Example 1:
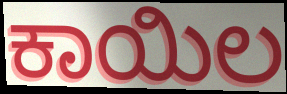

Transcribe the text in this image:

ಕಾಯಿಲ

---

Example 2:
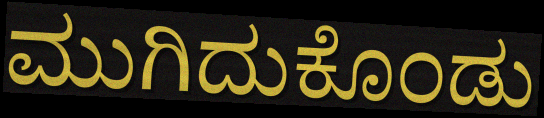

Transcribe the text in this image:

ಮುಗಿದುಕೊಂಡು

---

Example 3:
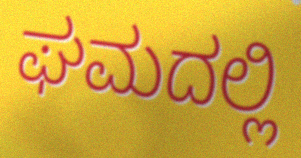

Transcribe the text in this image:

ಘಮದಲ್ಲಿ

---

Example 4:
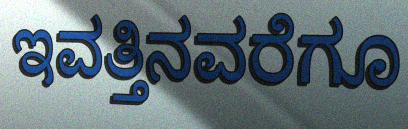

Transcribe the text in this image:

ಇವತ್ತಿನವರೆಗೂ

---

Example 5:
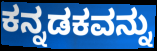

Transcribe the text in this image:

ಕನ್ನಡಕವನ್ನು